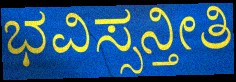
ಭವಿಸ್ಸನ್ತೀತಿ